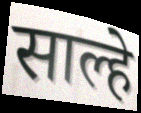
साल्हे